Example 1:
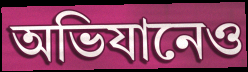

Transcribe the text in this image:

অভিযানেও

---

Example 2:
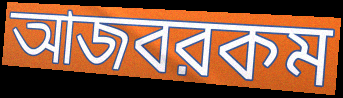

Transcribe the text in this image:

আজবরকম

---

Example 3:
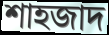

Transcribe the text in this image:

শাহজাদ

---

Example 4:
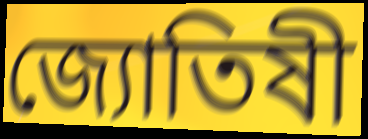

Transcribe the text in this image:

জ্যোতিষী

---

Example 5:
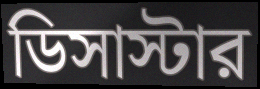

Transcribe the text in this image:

ডিসাস্টার